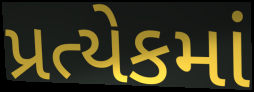
પ્રત્યેકમાં